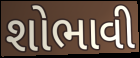
શોભાવી